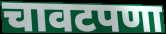
चावटपणा